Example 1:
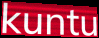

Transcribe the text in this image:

kuntu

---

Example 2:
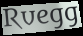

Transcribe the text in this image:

Ruegg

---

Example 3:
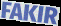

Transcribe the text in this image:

FAKIR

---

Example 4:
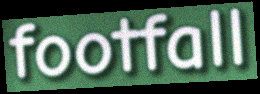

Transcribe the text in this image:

footfall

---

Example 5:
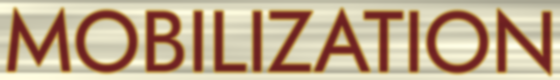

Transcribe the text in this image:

MOBILIZATION